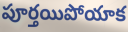
పూర్తయిపోయాక